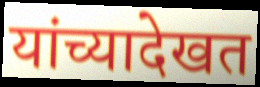
यांच्यादेखत